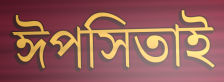
ঈপসিতাই